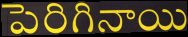
పెరిగినాయి